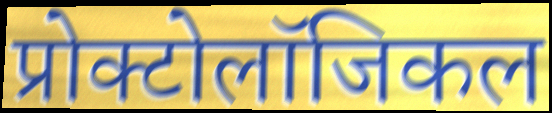
प्रोक्टोलॉजिकल